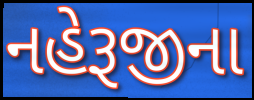
નહેરૂજીના